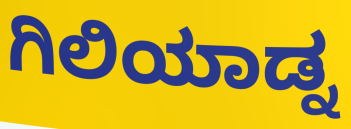
ಗಿಲಿಯಾಡ್ನ